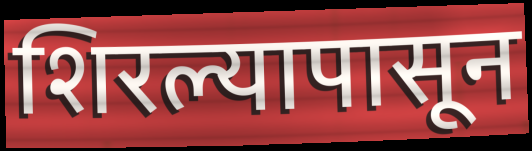
शिरल्यापासून